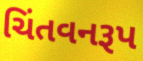
ચિંતવનરૂપ